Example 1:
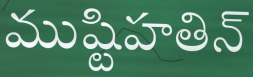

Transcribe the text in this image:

ముష్టిహతిన్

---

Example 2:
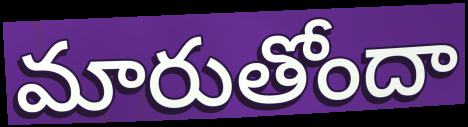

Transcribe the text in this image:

మారుతోందా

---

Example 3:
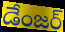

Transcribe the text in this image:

డేంజర్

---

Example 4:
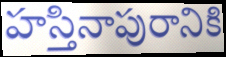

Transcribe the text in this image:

హస్తినాపురానికి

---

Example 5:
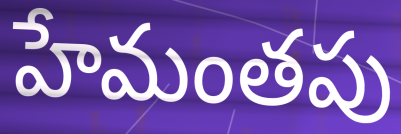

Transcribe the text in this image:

హేమంతపు